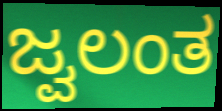
ಜ್ವಲಂತ